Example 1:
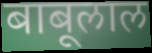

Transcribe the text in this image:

बाबूलाल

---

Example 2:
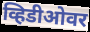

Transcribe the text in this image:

व्हिडीओवर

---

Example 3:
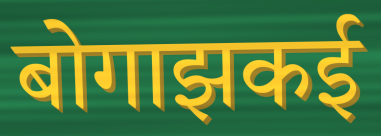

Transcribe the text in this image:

बोगाझकई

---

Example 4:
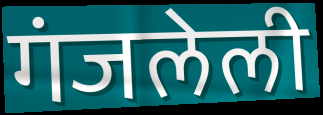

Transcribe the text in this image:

गंजलेली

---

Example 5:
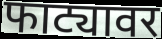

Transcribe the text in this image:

फाट्यावर